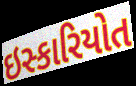
ઇસ્કારિયોત